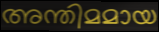
അന്തിമമായ